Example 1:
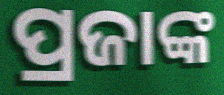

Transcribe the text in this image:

ପ୍ରଜାଙ୍କ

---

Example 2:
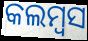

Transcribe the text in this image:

କଲମ୍ବସ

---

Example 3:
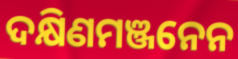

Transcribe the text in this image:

ଦକ୍ଷିଣମଞ୍ଜନେନ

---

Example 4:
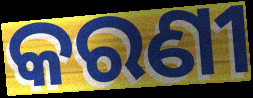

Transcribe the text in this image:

କରଣୀ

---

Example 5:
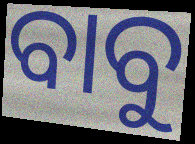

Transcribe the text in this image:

ବାବୁ